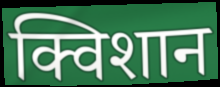
क्विशान